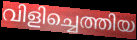
വിളിച്ചെത്തിയ